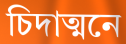
চিদাত্মনে